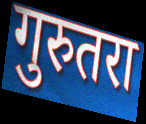
गुरुतरा